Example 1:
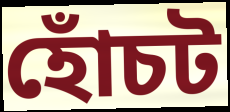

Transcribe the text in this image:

হোঁচট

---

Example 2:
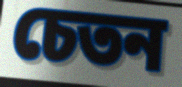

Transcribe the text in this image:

চেতন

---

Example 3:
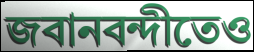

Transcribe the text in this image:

জবানবন্দীতেও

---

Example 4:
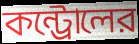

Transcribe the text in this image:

কন্ট্রোলের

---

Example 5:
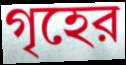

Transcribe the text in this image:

গৃহের